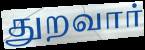
துறவார்